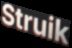
Struik